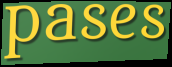
pases